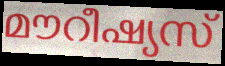
മൗറീഷ്യസ്